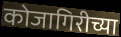
कोजागिरीच्या